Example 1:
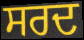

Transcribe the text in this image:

ਸਰਦ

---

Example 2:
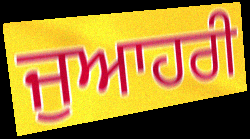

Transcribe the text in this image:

ਜੁਆਹਰੀ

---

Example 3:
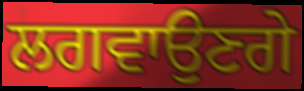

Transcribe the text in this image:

ਲਗਵਾਉਣਗੇ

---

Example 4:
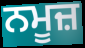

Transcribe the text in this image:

ਨਮੂਜ਼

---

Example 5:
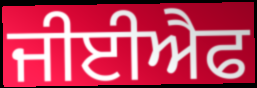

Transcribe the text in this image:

ਜੀਈਐਫ